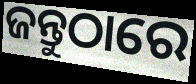
ଜନ୍ତୁଠାରେ